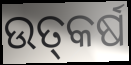
ଉତ୍‌କର୍ଷ